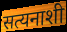
सत्यनाशी